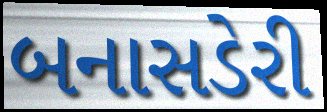
બનાસડેરી